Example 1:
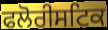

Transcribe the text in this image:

ਫਲੋਰੀਸਟਿਕ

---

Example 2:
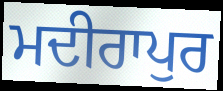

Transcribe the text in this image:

ਮਦੀਰਾਪੁਰ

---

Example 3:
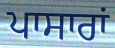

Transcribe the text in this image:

ਪਾਸਾਰਾਂ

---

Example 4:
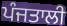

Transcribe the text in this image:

ਪੰਜਤਾਲੀ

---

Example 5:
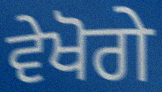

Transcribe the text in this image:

ਵੇਖੋਗੇ